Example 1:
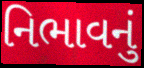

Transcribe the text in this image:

નિભાવનું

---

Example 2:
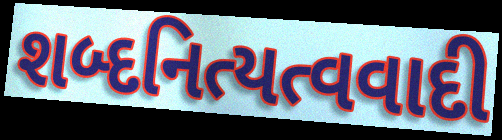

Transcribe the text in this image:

શબ્દનિત્યત્વવાદી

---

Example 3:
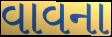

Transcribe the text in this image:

વાવના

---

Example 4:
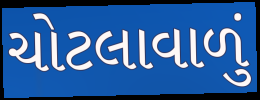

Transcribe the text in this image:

ચોટલાવાળું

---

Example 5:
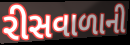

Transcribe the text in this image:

રીસવાળાની